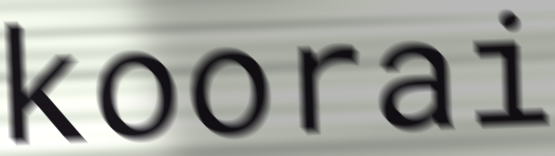
koorai